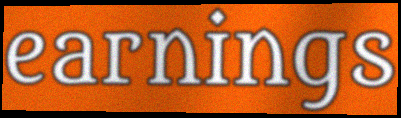
earnings